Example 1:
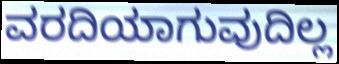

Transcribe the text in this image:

ವರದಿಯಾಗುವುದಿಲ್ಲ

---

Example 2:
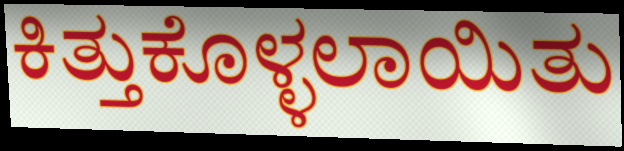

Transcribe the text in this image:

ಕಿತ್ತುಕೊಳ್ಳಲಾಯಿತು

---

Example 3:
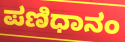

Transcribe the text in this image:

ಪಣಿಧಾನಂ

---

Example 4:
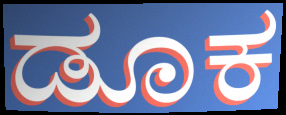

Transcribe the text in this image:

ಡೂಕ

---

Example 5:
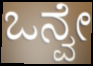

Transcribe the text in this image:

ಒನ್ವೇ